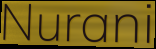
Nurani